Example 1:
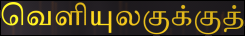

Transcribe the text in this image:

வெளியுலகுக்குத்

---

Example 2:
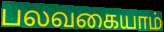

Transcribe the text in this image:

பலவகையாம்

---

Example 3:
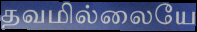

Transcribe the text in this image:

தவமில்லையே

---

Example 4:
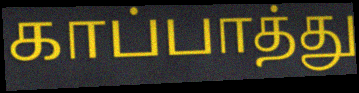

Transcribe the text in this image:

காப்பாத்து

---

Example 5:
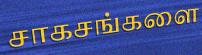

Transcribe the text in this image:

சாகசங்களை